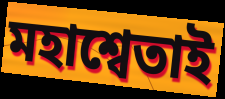
মহাশ্বেতাই